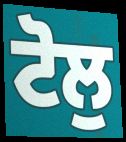
ਟੋਲੁ